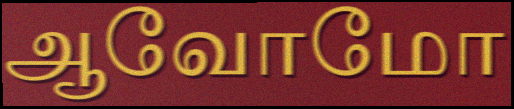
ஆவோமோ